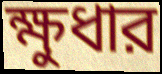
ক্ষুধার